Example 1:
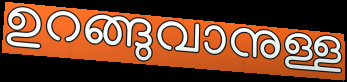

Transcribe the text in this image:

ഉറങ്ങുവാനുള്ള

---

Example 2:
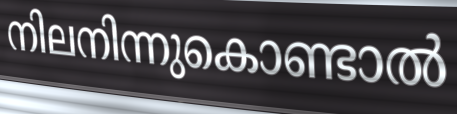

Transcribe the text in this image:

നിലനിന്നുകൊണ്ടാൽ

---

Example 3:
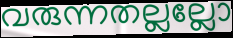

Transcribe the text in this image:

വരുന്നതല്ലല്ലോ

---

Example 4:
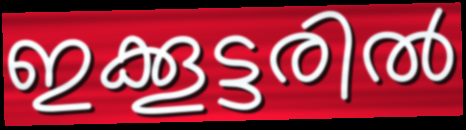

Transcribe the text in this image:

ഇക്കൂട്ടരിൽ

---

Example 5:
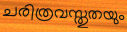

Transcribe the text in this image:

ചരിത്രവസ്തുതയും